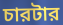
চারটার